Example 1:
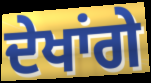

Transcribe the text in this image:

ਦੇਖਾਂਗੇ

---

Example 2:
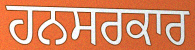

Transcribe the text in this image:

ਹਨਸਰਕਾਰ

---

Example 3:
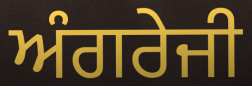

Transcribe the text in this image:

ਅੰਗਰੇਜੀ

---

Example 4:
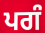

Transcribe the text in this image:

ਪਗੰ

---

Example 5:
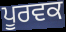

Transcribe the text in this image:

ਪੂਰਵਕ